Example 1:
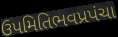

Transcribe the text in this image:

ઉપમિતિભવપ્રપંચા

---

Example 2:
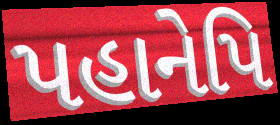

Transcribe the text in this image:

પહાનેપિ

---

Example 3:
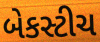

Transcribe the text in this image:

બેકસ્ટીચ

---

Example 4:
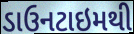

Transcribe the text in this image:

ડાઉનટાઇમથી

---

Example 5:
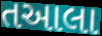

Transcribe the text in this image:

તઆલા